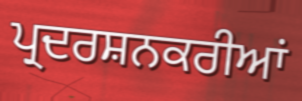
ਪ੍ਰਦਰਸ਼ਨਕਰੀਆਂ